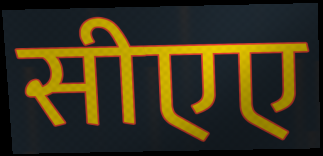
सीएए